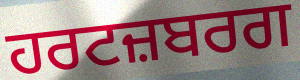
ਹਰਟਜ਼ਬਰਗ